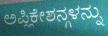
ಅಪ್ಲಿಕೇಶನ್ಗಳನ್ನು